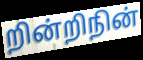
றின்றிநின்